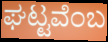
ಘಟ್ಟವೆಂಬ